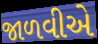
જાળવીએ